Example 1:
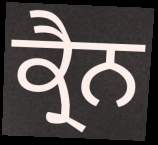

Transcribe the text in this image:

ਕ੍ਰੈਨ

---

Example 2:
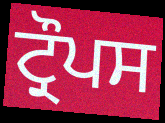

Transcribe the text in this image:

ਟ੍ਰੌਪਸ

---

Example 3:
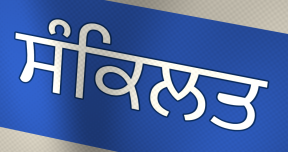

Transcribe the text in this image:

ਸੰਕਿਲਤ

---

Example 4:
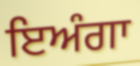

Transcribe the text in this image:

ਇਅੰਗਾ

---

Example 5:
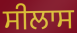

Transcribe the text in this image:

ਸੀਲਾਸ